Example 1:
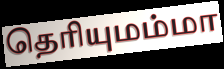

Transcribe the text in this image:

தெரியுமம்மா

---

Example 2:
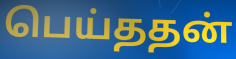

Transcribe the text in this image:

பெய்ததன்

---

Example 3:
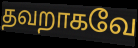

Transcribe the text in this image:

தவறாகவே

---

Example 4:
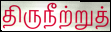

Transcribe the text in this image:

திருநீற்றுத்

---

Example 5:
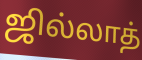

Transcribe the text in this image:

ஜில்லாத்